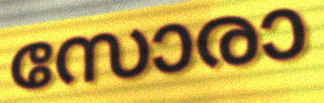
സോരാ